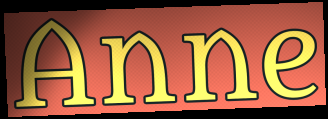
Anne